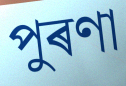
পুৰণা